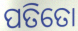
ପତିତୋ